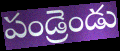
పండ్రెండు